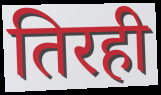
तिरही